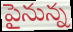
పైనున్న